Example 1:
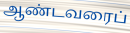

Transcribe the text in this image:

ஆண்டவரைப்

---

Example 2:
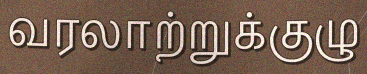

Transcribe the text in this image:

வரலாற்றுக்குழு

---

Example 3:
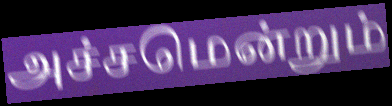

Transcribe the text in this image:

அச்சமென்றும்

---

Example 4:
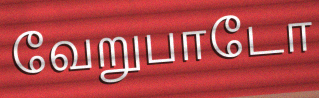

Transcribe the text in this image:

வேறுபாடோ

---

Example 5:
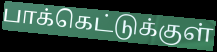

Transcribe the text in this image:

பாக்கெட்டுக்குள்